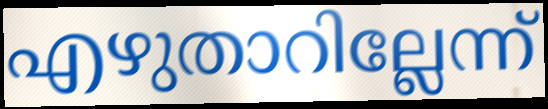
എഴുതാറില്ലേന്ന്